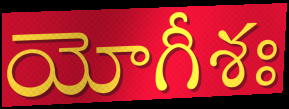
యోగీశః